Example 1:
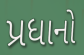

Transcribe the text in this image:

પ્રધાનો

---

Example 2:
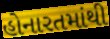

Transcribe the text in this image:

હોનારતમાંથી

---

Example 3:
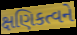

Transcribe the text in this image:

ક્ષણિકત્વને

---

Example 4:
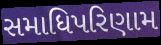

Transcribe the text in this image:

સમાધિપરિણામ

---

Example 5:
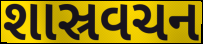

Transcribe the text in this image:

શાસ્રવચન